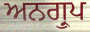
ਅਨਗ੍ਰੁਪ